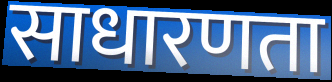
साधारणता